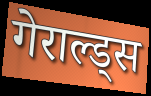
गेराल्ड्स